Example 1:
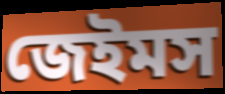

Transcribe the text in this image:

জেইমস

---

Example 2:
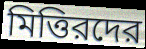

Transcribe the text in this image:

মিত্তিরদের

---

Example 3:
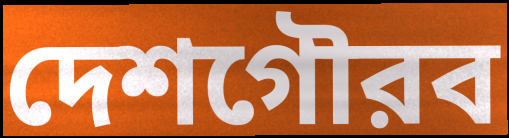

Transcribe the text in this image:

দেশগৌরব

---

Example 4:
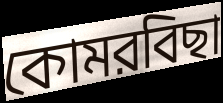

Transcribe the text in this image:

কোমরবিছা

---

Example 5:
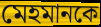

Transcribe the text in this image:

মেহমানকে